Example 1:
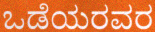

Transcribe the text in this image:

ಒಡೆಯರವರ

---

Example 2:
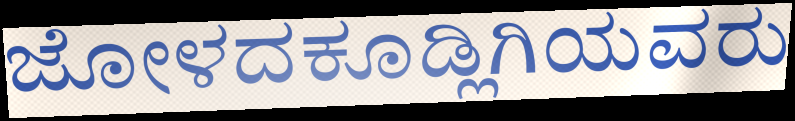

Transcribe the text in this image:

ಜೋಳದಕೂಡ್ಲಿಗಿಯವರು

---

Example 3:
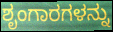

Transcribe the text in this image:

ಶೃಂಗಾರಗಳನ್ನು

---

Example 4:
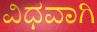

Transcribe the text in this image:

ವಿಧವಾಗಿ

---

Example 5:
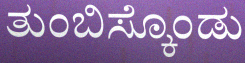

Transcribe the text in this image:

ತುಂಬಿಸ್ಕೊಂಡು